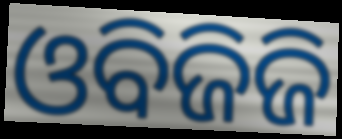
ଓବିଜିଜି